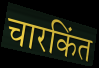
चारकिंत